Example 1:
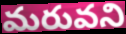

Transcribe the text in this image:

మరువని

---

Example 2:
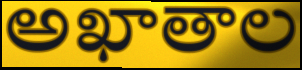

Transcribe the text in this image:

అఖాతాల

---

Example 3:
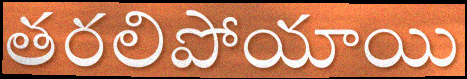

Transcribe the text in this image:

తరలిపోయాయి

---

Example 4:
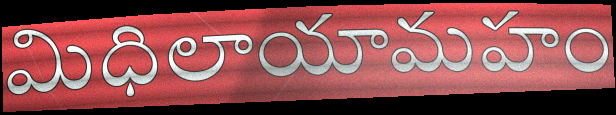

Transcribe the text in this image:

మిధిలాయామహం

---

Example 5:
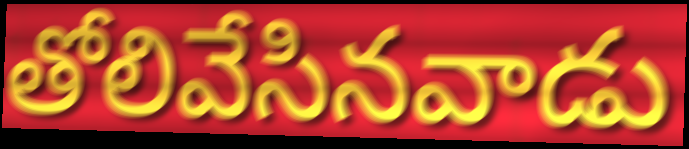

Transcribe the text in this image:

తోలివేసినవాడు